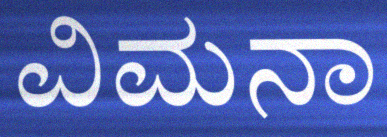
ವಿಮನಾ